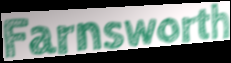
Farnsworth